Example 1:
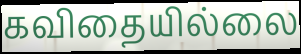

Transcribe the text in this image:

கவிதையில்லை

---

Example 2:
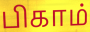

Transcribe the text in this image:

பிகாம்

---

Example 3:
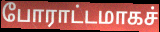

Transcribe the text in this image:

போராட்டமாகச்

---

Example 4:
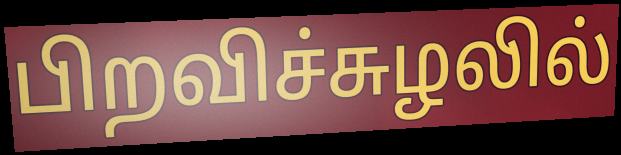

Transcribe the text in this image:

பிறவிச்சுழலில்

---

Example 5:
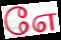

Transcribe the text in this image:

எே